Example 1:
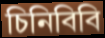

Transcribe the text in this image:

চিনিবিবি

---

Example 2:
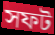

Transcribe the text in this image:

সফট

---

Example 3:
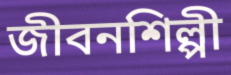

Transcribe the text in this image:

জীবনশিল্পী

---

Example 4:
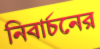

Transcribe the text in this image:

নিবার্চনের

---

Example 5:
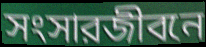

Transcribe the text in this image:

সংসারজীবনে